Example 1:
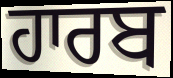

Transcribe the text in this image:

ਹਾਰਬ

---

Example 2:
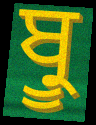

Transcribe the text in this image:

ਬ੍ਰੂ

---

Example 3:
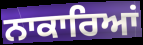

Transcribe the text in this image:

ਨਾਕਾਰਿਆਂ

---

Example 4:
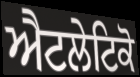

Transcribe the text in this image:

ਐਟਲੇਟਿਕੋ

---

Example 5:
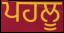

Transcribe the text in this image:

ਪਹਲੂ